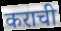
कराची